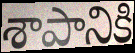
శాపానికి